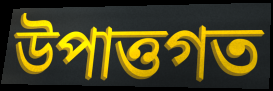
উপাত্তগত